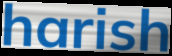
harish